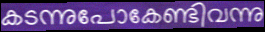
കടന്നുപോകേണ്ടിവന്നു